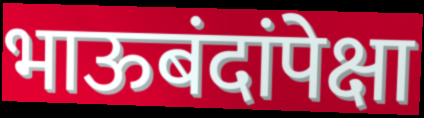
भाऊबंदांपेक्षा